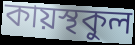
কায়স্থকুল